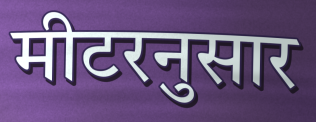
मीटरनुसार